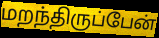
மறந்திருப்பேன்